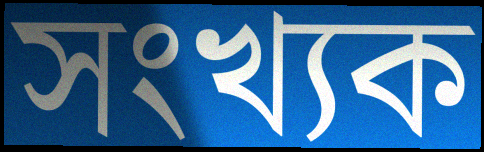
সংখ্যক